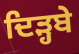
ਦਿੜ੍ਹਬੇ